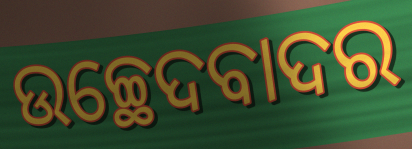
ଉଚ୍ଛେଦବାଦର